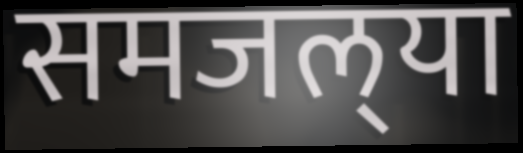
समजल्या